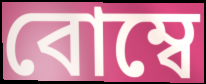
বোম্বে